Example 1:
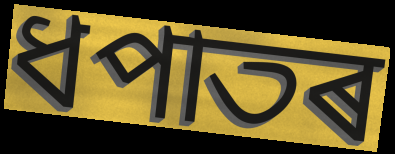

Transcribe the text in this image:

ধপাতৰ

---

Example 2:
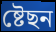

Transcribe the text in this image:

ষ্টেছন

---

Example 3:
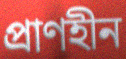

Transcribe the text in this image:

প্ৰাণহীন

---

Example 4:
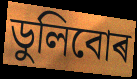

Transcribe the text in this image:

ডুলিবোৰ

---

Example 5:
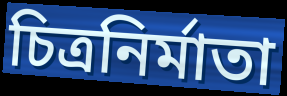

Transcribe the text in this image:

চিত্ৰনিৰ্মাতা